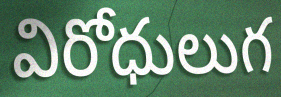
విరోధులుగ